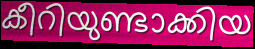
കീറിയുണ്ടാക്കിയ